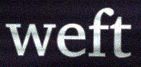
weft